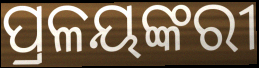
ପ୍ରଳୟଙ୍କରୀ